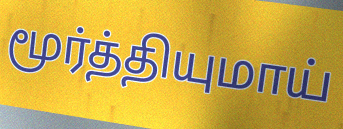
மூர்த்தியுமாய்